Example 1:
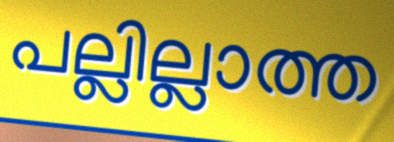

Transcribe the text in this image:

പല്ലില്ലാത്ത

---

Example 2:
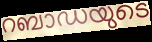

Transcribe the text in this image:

റബാഡയുടെ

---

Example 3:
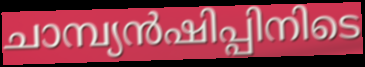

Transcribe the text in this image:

ചാമ്പ്യൻഷിപ്പിനിടെ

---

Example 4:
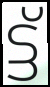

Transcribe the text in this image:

ട്ട്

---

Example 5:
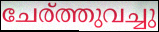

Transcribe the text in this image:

ചേര്ത്തുവച്ചു